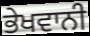
ਭੇਖਵਾਨੀ